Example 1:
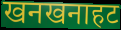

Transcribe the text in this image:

खनखनाहट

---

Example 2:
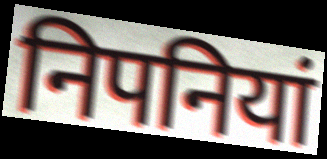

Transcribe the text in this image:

निपनियां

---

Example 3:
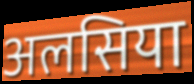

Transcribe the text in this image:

अलसिया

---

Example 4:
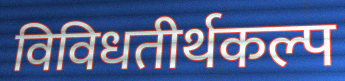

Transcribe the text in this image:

विविधतीर्थकल्प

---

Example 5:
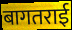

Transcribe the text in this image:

बागतराई